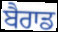
ਬੈਰਾਡ